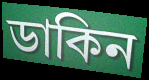
ডাকিন